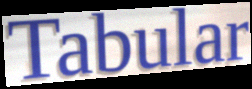
Tabular